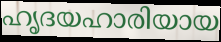
ഹൃദയഹാരിയായ